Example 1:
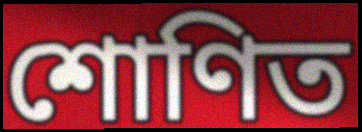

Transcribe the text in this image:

শোণিত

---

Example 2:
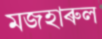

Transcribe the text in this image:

মজহাৰুল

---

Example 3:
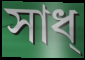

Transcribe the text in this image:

সাধ্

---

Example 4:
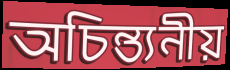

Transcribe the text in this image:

অচিন্ত্যনীয়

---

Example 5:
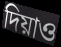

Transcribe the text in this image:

দিয়াও